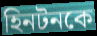
হিনটনকে